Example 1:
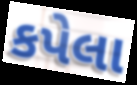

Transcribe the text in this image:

કપેલા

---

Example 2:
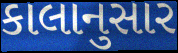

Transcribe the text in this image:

કાલાનુસાર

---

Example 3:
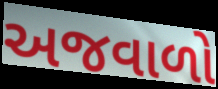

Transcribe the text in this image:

અજવાળો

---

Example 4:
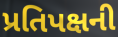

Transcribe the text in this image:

પ્રતિપક્ષની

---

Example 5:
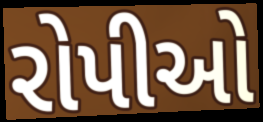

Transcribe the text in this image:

રોપીઓ